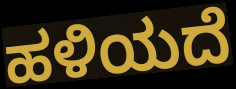
ಹಳಿಯದೆ